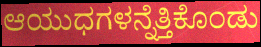
ಆಯುಧಗಳನ್ನೆತ್ತಿಕೊಂಡು